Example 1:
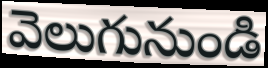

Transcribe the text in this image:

వెలుగునుండి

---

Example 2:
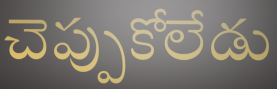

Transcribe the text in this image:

చెప్పుకోలేడు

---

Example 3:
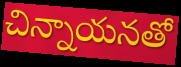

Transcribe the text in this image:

చిన్నాయనతో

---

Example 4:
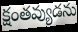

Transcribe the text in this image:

క్షంతవ్యుడను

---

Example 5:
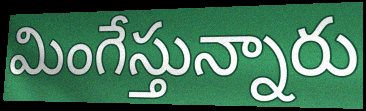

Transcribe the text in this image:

మింగేస్తున్నారు